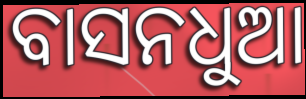
ବାସନଧୁଆ